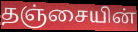
தஞ்சையின்